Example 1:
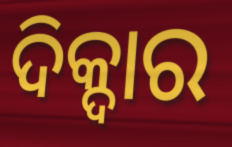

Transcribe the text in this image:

ଦିକ୍ଦାର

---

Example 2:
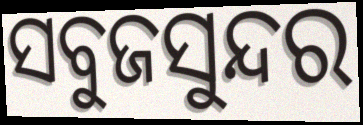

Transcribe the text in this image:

ସବୁଜସୁନ୍ଦର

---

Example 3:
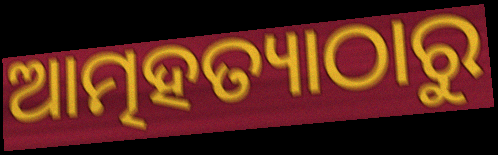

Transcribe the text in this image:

ଆତ୍ମହତ୍ୟାଠାରୁ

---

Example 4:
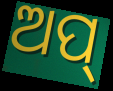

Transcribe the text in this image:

ଅପ୍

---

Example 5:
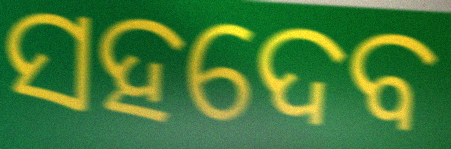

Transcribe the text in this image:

ସହଦେବ